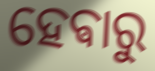
ହେଵାରୁ